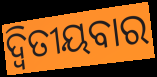
ଦ୍ୱିତୀୟବାର